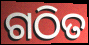
ଗଠିତ